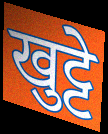
खुट्टे